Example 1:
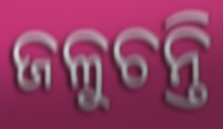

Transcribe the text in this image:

ଜଳୁଚନ୍ତି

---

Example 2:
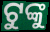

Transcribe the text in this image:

ଟୁଙ୍କୁ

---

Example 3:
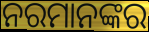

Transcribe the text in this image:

ନରମାନଙ୍କର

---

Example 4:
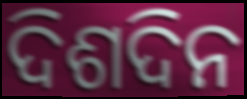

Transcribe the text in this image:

ଦିଶଦିନ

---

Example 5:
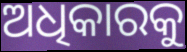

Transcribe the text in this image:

ଅଧିକାରକୁ